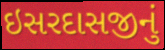
ઇસરદાસજીનું